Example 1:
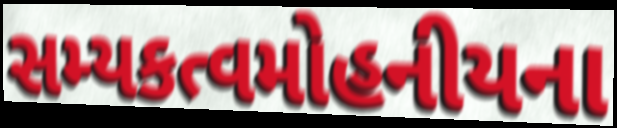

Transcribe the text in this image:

સમ્યકત્વમોહનીયના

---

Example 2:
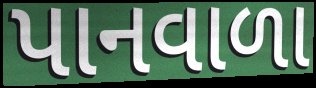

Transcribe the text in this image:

પાનવાળા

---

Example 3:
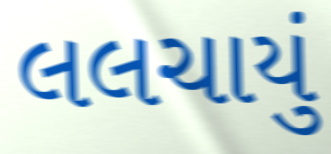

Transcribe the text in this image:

લલચાયું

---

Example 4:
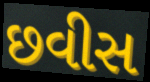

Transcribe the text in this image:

છવીસ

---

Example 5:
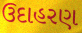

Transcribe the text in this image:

ઉદાહરણ